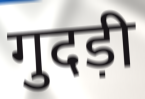
गुदड़ी